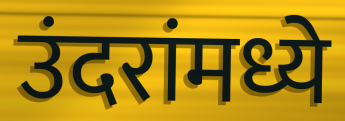
उंदरांमध्ये